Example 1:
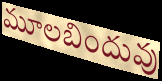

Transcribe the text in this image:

మూలబిందువు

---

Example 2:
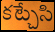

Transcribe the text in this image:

కట్చేసి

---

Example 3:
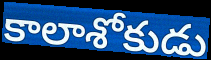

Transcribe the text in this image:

కాలాశోకుడు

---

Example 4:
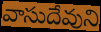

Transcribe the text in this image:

వాసుదేవుని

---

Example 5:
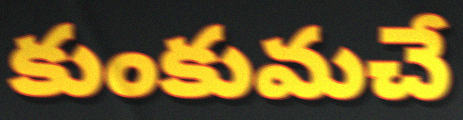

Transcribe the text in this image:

కుంకుమచే